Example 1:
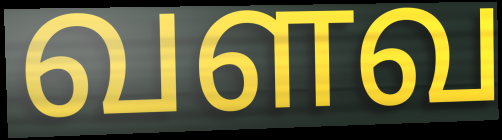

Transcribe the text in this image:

வளவ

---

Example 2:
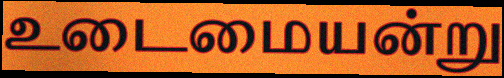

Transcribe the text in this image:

உடைமையன்று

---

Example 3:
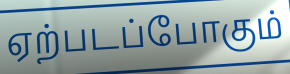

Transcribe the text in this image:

ஏற்படப்போகும்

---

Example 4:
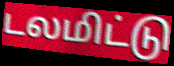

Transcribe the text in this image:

டலமிட்டு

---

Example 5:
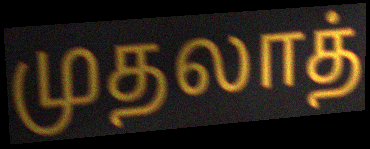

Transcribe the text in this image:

முதலாத்